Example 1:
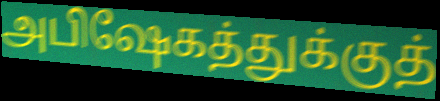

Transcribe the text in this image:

அபிஷேகத்துக்குத்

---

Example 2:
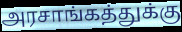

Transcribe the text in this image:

அரசாங்கத்துக்கு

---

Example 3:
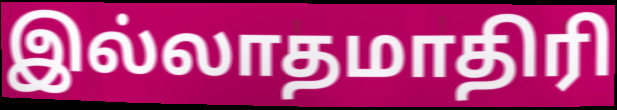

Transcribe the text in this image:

இல்லாதமாதிரி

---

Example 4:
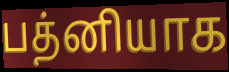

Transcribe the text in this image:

பத்னியாக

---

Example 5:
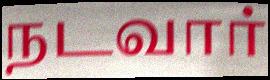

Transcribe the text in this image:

நடவார்